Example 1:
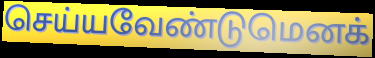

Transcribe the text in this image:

செய்யவேண்டுமெனக்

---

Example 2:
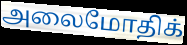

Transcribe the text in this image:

அலைமோதிக்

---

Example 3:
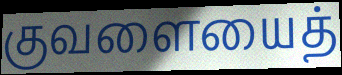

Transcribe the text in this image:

குவளையைத்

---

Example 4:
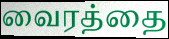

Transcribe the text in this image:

வைரத்தை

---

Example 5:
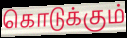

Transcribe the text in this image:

கொடுக்கும்